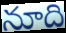
నూది